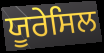
ਯੂਰੇਸਿਲ